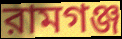
রামগঞ্জ